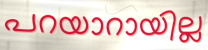
പറയാറായില്ല